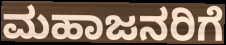
ಮಹಾಜನರಿಗೆ